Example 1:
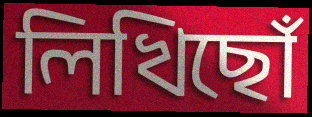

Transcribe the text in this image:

লিখিছোঁ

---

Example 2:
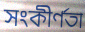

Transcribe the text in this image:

সংকীৰ্ণতা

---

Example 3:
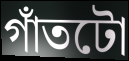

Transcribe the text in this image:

গাঁতটো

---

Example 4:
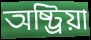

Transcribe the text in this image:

অষ্ট্ৰিয়া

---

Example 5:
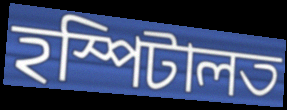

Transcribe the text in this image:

হস্পিটালত